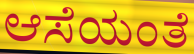
ಆಸೆಯಂತೆ